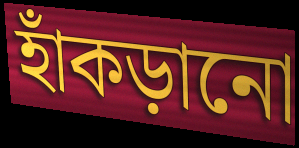
হাঁকড়ানো